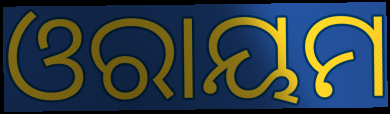
ଓରାୟମ